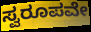
ಸ್ವರೂಪವೇ